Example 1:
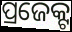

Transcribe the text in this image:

ପ୍ରଜେକ୍ଟ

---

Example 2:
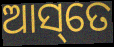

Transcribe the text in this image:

ଆସ୍‌ତେ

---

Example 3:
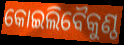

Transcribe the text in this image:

କୋଇଲିବୈକୁଣ୍ଠ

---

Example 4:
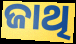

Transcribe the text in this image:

ଜାଥି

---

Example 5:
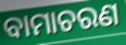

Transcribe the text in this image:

ବାମାଚରଣ